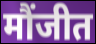
मौंजीत